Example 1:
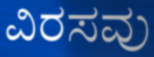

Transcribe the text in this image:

ವಿರಸವು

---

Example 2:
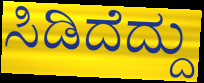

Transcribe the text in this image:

ಸಿಡಿದೆದ್ದು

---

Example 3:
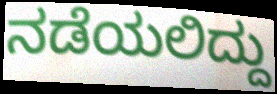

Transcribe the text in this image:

ನಡೆಯಲಿದ್ದು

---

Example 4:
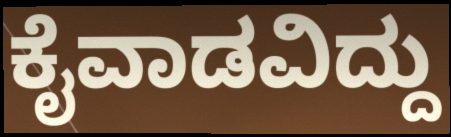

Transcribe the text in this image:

ಕೈವಾಡವಿದ್ದು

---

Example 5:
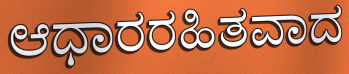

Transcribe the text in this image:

ಆಧಾರರಹಿತವಾದ